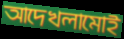
আদেখলামোই